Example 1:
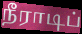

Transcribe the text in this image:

நீராடிப்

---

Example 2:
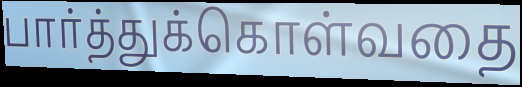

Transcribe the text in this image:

பார்த்துக்கொள்வதை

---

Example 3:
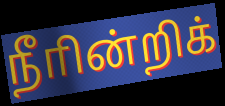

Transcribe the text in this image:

நீரின்றிக்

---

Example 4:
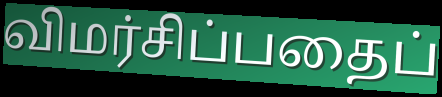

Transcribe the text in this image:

விமர்சிப்பதைப்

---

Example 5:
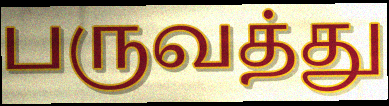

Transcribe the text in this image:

பருவத்து